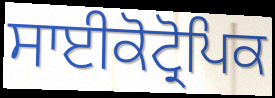
ਸਾਈਕੋਟ੍ਰੋਪਿਕ